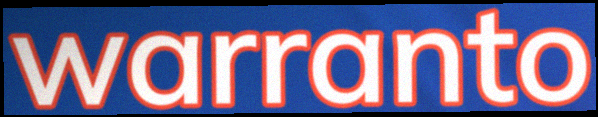
warranto